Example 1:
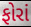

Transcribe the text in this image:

ફોરાં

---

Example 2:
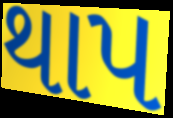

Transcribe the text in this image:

થાપ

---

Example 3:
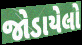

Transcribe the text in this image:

જોડાયેલો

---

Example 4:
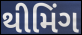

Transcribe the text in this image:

થીમિંગ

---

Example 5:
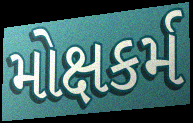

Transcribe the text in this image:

મોક્ષકર્મ